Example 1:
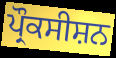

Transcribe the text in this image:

ਪ੍ਰੌਕਸੀਸ਼ਨ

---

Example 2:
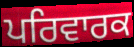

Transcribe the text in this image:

ਪਰਿਵਾਰਕ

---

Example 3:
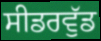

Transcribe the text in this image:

ਸੀਡਰਵੁੱਡ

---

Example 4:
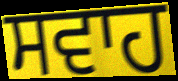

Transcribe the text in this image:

ਸਵਾਹ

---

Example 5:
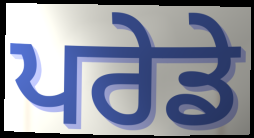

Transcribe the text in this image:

ਪਰੇਡੇ